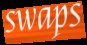
swaps